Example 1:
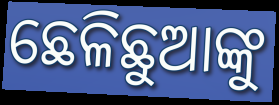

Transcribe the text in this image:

ଛେଳିଛୁଆଙ୍କୁ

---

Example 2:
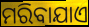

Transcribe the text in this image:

ମରିବାଯାଏ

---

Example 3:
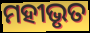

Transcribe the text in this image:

ମହୀଭୃତ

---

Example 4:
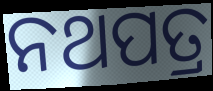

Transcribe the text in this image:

ନଥପତ୍ର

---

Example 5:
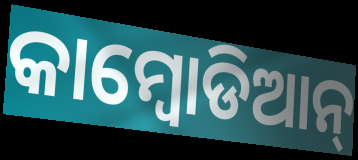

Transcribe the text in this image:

କାମ୍ବୋଡିଆନ୍